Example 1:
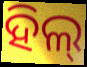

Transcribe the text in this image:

ହିଲ୍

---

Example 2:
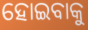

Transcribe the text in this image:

ହୋଇବାକୁ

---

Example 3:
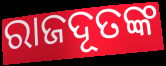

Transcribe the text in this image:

ରାଜଦୂତଙ୍କ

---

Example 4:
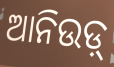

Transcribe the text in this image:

ଆନିଉଡ଼୍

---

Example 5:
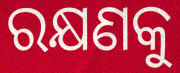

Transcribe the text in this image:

ରକ୍ଷଣକୁ